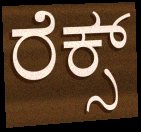
ರೆಕ್ಸ್